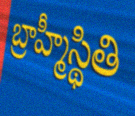
బ్రాహ్మీస్థితి